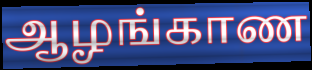
ஆழங்காண